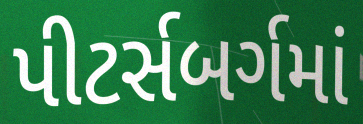
પીટર્સબર્ગમાં